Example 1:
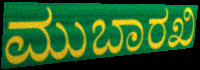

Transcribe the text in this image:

ಮುಬಾರಖಿ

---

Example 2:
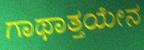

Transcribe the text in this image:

ಗಾಥಾತ್ತಯೇನ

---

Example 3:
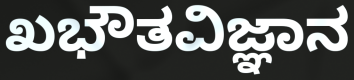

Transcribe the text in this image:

ಖಭೌತವಿಜ್ಞಾನ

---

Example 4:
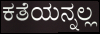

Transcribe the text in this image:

ಕತೆಯನ್ನಲ್ಲ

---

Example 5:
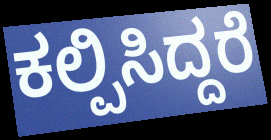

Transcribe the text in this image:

ಕಲ್ಪಿಸಿದ್ದರೆ